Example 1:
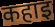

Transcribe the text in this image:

कहाइ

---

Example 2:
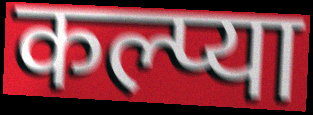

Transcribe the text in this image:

कल्प्या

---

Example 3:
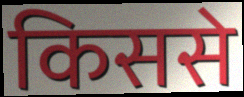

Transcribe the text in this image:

किससे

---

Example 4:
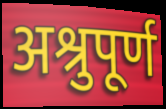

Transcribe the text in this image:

अश्रुपूर्ण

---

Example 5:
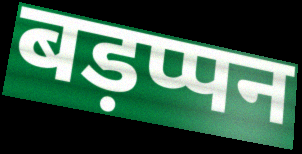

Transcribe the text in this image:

बड़प्पन